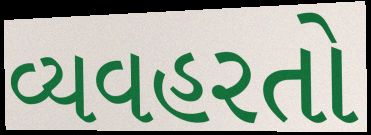
વ્યવહરતો